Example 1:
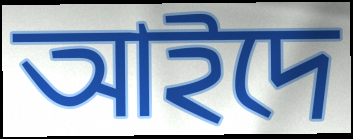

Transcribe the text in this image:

আইদে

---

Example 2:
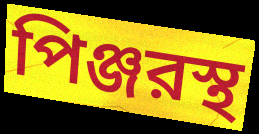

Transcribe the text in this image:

পিঞ্জরস্থ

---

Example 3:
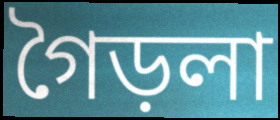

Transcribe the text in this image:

গৈড়লা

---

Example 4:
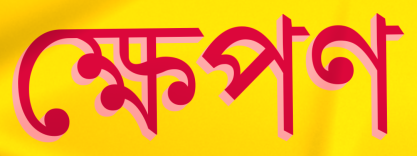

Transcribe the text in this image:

ক্ষেপণ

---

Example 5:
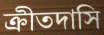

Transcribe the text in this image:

ক্রীতদাসি